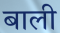
बाली